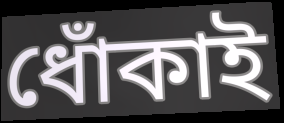
ধোঁকাই